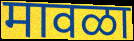
मावळा